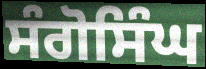
ਸੰਗੋਸਿੰਘ